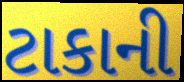
ટાકાની